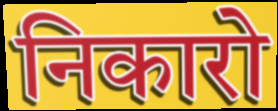
निकारो